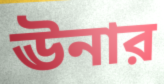
ঊনার